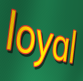
loyal